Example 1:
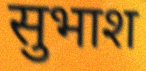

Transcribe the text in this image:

सुभाश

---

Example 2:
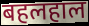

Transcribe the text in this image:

बहलहाल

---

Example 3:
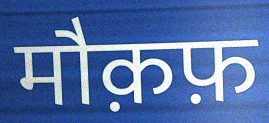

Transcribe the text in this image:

मौक़फ़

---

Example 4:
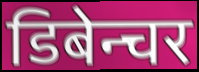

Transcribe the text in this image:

डिबेन्चर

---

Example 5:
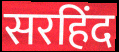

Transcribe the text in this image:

सरहिंद